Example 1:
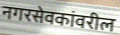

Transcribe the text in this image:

नगरसेवकांवरील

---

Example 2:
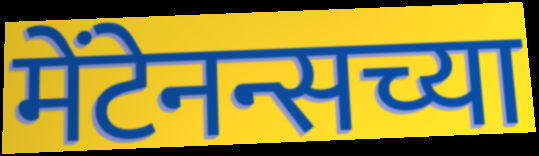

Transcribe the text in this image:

मेंटेनन्सच्या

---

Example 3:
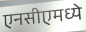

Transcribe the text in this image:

एनसीएमध्ये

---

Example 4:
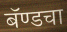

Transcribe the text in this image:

बॅण्डचा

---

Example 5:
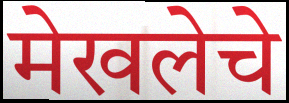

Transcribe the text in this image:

मेखलेचे